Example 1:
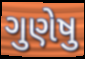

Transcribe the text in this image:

ગુણેષુ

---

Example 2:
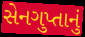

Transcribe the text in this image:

સેનગુપ્‍તાનું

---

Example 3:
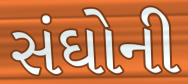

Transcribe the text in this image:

સંઘોની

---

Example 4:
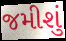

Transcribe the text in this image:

જમીશું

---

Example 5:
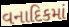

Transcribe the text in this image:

વનાદિકમાં